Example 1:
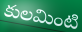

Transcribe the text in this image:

కులమింటి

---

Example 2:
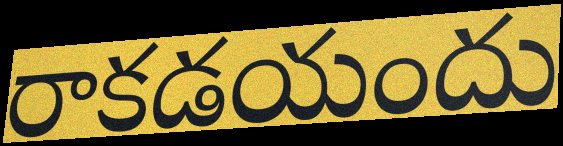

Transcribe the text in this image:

రాకడయందు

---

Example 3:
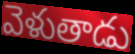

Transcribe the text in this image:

వెళుతాడు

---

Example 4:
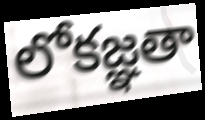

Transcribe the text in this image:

లోకజ్ఞతా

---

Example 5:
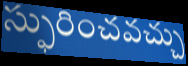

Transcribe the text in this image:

స్ఫురించవచ్చు